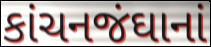
કાંચનજંઘાનાં